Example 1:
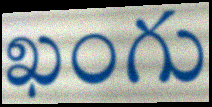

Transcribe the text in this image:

ఖంగు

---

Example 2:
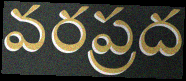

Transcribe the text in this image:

వరప్రద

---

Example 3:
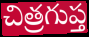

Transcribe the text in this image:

చిత్రగుప్త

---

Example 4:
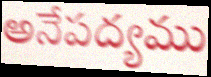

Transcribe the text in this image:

అనేపద్యము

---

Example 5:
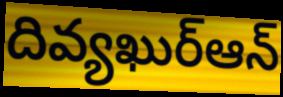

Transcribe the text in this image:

దివ్యఖుర్ఆన్